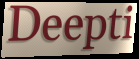
Deepti